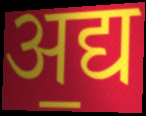
अ॒द्य